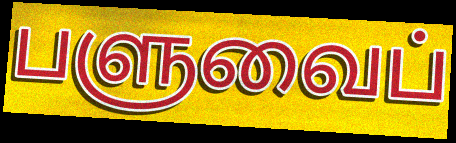
பளுவைப்